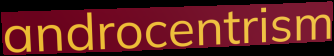
androcentrism